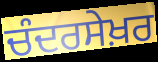
ਚੰਦਰਸੇਖ਼ਰ